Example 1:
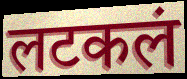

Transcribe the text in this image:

लटकलं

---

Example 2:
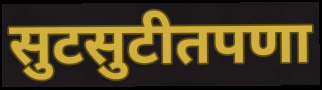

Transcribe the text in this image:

सुटसुटीतपणा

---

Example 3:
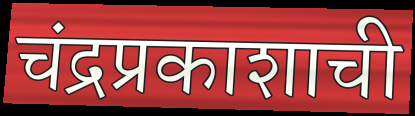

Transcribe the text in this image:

चंद्रप्रकाशाची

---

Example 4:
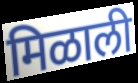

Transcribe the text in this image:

मिळाली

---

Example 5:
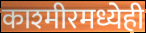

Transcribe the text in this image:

काश्‍मीरमध्येही